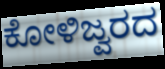
ಕೋಳಿಜ್ವರದ